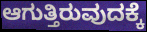
ಆಗುತ್ತಿರುವುದಕ್ಕೆ